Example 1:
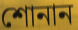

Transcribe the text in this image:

শোনান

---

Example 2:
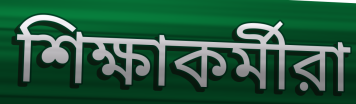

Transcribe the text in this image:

শিক্ষাকর্মীরা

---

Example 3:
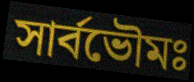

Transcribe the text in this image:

সার্বভৌমঃ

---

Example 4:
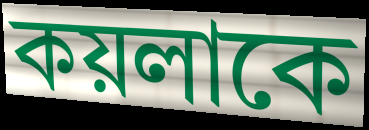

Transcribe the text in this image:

কয়লাকে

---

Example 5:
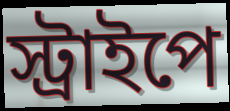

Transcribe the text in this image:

স্ট্রাইপে